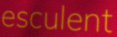
esculent